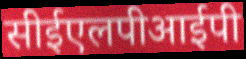
सीईएलपीआईपी